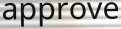
approve